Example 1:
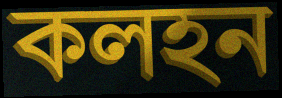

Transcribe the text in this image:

কলহন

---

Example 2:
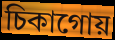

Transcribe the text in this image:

চিকাগোয়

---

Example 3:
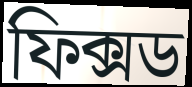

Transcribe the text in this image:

ফিক্সড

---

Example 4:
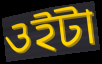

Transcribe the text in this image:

ওইটা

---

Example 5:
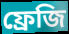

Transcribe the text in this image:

ফ্রেজি